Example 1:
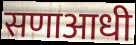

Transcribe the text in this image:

सणाआधी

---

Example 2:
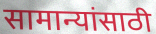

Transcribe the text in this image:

सामान्यांसाठी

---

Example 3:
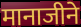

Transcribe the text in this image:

मानाजीने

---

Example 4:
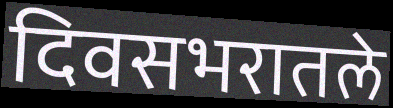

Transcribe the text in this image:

दिवसभरातले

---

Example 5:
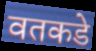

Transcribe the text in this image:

वतकडे